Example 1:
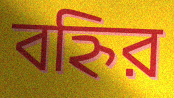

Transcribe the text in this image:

বহ্নির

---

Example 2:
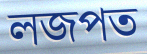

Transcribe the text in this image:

লজপত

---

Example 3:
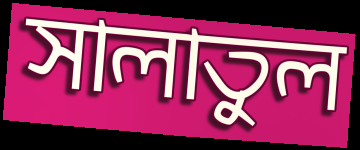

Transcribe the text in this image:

সালাতুল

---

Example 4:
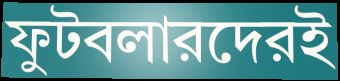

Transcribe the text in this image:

ফুটবলারদেরই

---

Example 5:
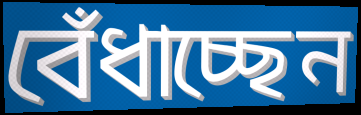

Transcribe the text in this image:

বেঁধাচ্ছেন